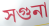
সগুনা